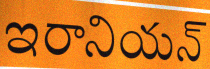
ఇరానియన్